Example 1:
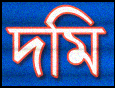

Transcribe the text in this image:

দমি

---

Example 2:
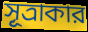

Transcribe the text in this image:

সূত্রাকার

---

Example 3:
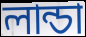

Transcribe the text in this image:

লান্ডা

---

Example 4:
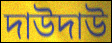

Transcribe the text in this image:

দাউদাউ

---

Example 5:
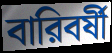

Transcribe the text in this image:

বারিবর্ষী